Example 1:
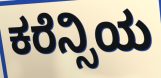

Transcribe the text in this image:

ಕರೆನ್ಸಿಯ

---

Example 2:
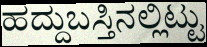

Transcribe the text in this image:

ಹದ್ದುಬಸ್ತಿನಲ್ಲಿಟ್ಟು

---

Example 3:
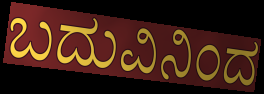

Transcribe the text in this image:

ಬದುವಿನಿಂದ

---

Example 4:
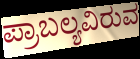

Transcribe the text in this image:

ಪ್ರಾಬಲ್ಯವಿರುವ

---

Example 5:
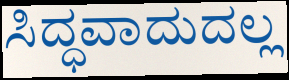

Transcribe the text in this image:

ಸಿದ್ಧವಾದುದಲ್ಲ